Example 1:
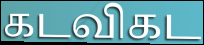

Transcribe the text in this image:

கடவிகட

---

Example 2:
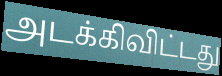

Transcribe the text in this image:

அடக்கிவிட்டது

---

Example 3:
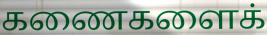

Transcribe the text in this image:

கணைகளைக்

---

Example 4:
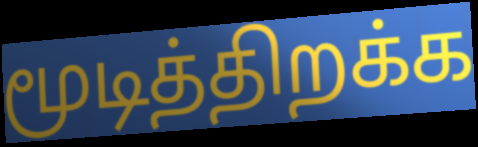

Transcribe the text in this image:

மூடித்திறக்க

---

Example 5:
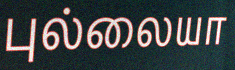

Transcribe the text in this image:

புல்லையா